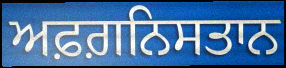
ਅਫ਼ਗ਼ਨਿਸਤਾਨ